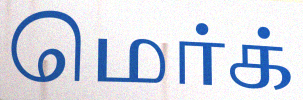
மெர்க்